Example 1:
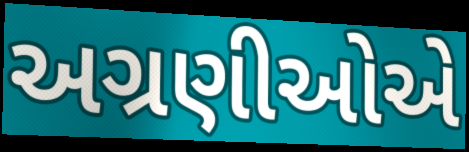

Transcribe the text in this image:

અગ્રણીઓએ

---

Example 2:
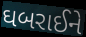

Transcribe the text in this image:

ઘબરાઈને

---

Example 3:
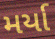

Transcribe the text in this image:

મર્યા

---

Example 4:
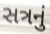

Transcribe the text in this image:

સત્રનું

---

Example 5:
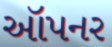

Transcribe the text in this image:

ઑપનર